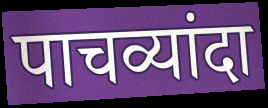
पाचव्यांदा